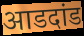
आडदांड